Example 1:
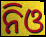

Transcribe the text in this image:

ନିଓ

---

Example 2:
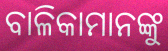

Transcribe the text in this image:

ବାଳିକାମାନଙ୍କୁ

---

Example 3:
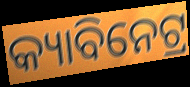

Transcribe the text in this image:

କ୍ୟାବିନେଟ୍ର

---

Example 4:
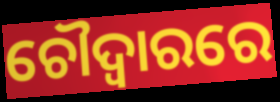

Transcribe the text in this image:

ଚୌଦ୍ୱାରରେ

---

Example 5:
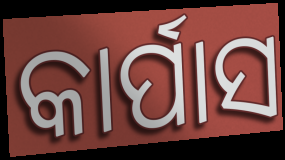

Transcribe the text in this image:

କାର୍ପାସ